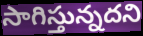
సాగిస్తున్నదని